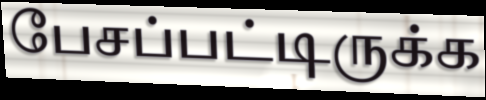
பேசப்பட்டிருக்க